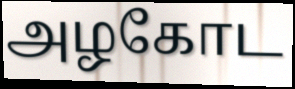
அழகோட